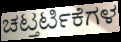
ಚಟ್ತರ್ಟಿಕೆಗಳ